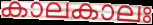
കാലകാലഃ